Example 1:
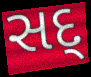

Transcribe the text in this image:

સદ્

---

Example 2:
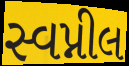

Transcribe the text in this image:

સ્વપ્નીલ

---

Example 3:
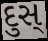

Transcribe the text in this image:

દુસ્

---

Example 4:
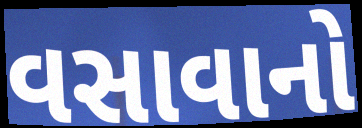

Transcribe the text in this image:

વસાવાનો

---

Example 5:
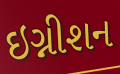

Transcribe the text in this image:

ઇગ્નીશન